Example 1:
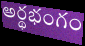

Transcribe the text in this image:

అర్థభంగం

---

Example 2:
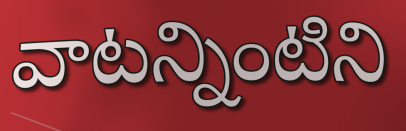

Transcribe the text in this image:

వాటన్నింటిని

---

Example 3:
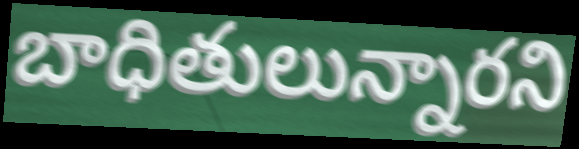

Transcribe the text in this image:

బాధితులున్నారని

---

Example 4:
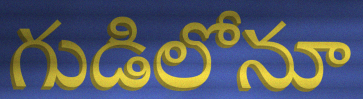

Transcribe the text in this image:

గుడిలోనూ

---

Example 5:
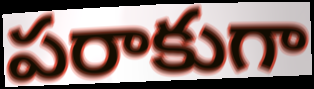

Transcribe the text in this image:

పరాకుగా